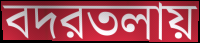
বদরতলায়